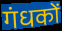
गंधकों